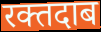
रक्तदाब